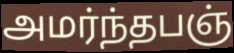
அமர்ந்தபஞ்